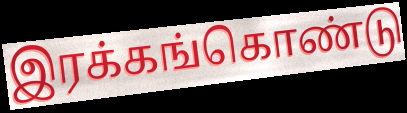
இரக்கங்கொண்டு